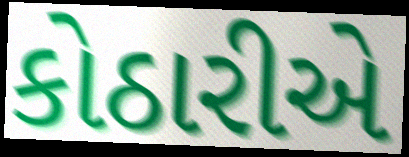
કોઠારીએ